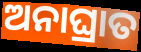
ଅନାଘ୍ରାତ